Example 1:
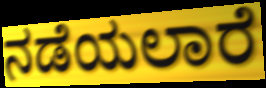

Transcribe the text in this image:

ನಡೆಯಲಾರೆ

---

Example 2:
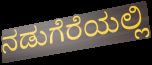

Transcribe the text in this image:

ನಡುಗೆರೆಯಲ್ಲಿ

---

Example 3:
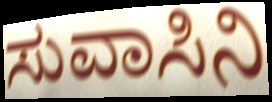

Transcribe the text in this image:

ಸುವಾಸಿನಿ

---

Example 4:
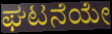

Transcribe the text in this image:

ಘಟನೆಯೇ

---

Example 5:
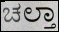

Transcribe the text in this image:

ಚಲ್ತಾ